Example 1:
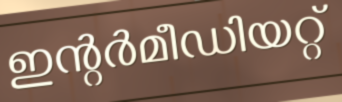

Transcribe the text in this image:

ഇന്റർമീഡിയറ്റ്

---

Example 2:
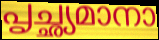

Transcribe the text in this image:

പൃച്ഛ്യമാനാ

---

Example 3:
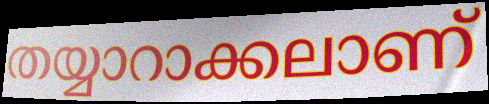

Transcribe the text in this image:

തയ്യാറാക്കലാണ്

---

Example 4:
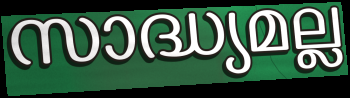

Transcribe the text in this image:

സാദ്ധ്യമല്ല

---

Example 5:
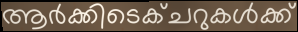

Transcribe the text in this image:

ആർക്കിടെക്ചറുകൾക്ക്